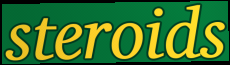
steroids